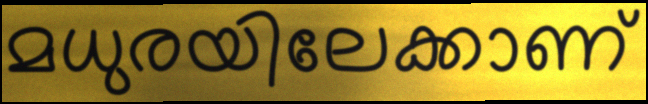
മധുരയിലേക്കാണ്